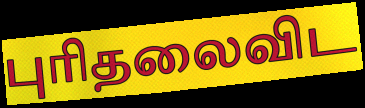
புரிதலைவிட